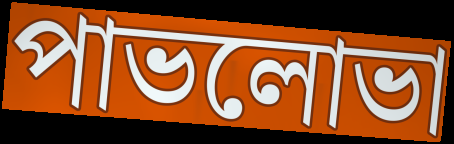
পাভলোভা